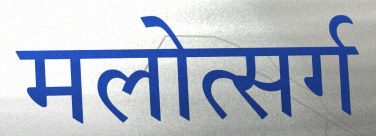
मलोत्सर्ग